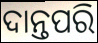
ଦାନ୍ତପରି